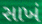
સાખં